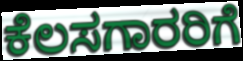
ಕೆಲಸಗಾರರಿಗೆ